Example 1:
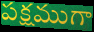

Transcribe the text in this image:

పక్షముగా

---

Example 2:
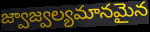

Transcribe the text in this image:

జ్వాజ్వల్యమానమైన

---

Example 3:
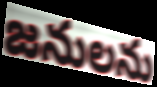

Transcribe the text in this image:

జనులను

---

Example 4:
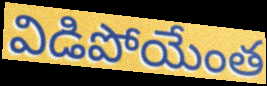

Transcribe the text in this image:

విడిపోయేంత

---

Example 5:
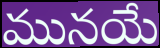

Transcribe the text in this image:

మునయే